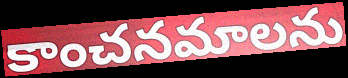
కాంచనమాలను